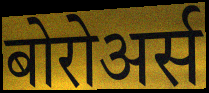
बोरोअर्स